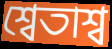
শ্বেতাশ্ব